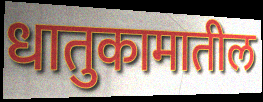
धातुकामातील